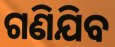
ଗଣିଯିବ